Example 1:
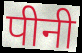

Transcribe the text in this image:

पीनी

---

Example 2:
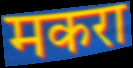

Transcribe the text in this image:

मकरा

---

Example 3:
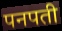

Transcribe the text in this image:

पनपती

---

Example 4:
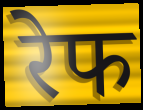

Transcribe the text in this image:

रेफ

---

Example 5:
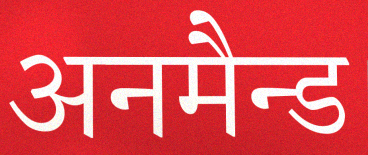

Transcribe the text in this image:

अनमैन्ड